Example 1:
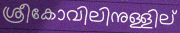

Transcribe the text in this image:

ശ്രീകോവിലിനുള്ളില്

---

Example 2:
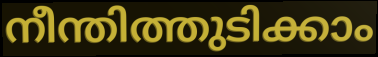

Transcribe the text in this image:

നീന്തിത്തുടിക്കാം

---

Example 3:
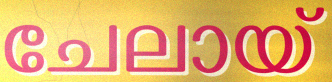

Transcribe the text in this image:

ചേലായ്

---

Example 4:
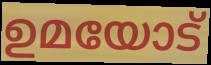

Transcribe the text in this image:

ഉമയോട്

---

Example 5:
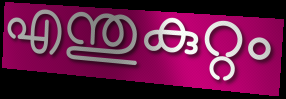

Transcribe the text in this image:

എന്തുകുറ്റം